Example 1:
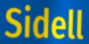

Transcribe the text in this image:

Sidell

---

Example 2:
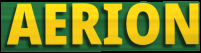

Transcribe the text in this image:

AERION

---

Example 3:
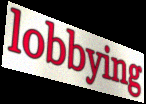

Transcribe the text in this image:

lobbying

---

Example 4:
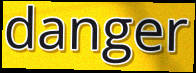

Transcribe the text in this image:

danger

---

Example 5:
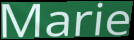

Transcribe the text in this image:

Marie